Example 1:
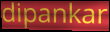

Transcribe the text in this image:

dipankar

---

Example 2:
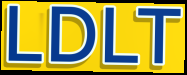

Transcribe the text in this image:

LDLT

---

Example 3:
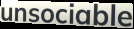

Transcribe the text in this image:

unsociable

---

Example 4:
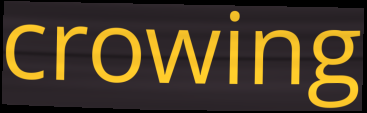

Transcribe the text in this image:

crowing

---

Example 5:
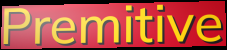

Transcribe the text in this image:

Premitive